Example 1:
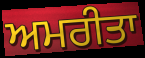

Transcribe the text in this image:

ਅਮਰੀਤਾ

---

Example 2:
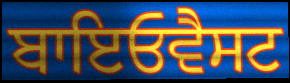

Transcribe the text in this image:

ਬਾਇਓਵੈਸਟ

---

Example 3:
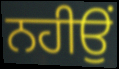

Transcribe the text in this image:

ਨਹੀਉਂ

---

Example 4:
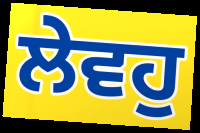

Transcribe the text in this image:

ਲੇਵਹੁ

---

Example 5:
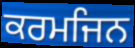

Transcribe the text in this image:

ਕਰਮਜਿਨ